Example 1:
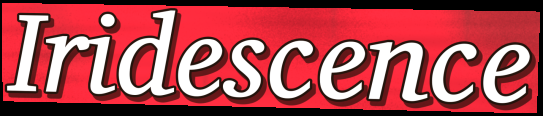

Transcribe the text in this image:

Iridescence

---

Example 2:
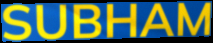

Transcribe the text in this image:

SUBHAM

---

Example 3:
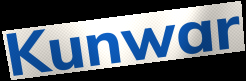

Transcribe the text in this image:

Kunwar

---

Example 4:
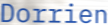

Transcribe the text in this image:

Dorrien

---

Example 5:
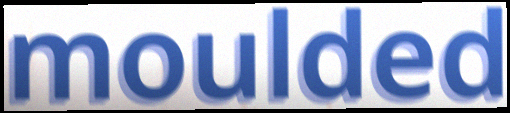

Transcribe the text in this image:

moulded